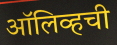
ऑलिव्हची